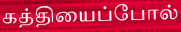
கத்தியைப்போல்